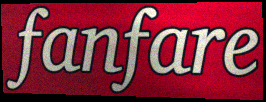
fanfare